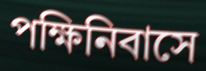
পক্ষিনিবাসে